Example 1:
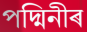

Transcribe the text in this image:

পদ্মিনীৰ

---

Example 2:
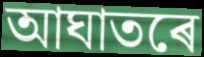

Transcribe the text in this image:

আঘাতৰে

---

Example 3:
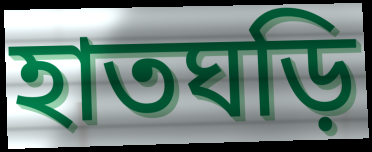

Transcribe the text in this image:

হাতঘড়ি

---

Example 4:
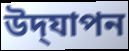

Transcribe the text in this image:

উদ্‌যাপন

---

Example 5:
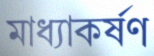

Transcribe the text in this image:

মাধ্যাকৰ্ষণ